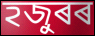
হজুৰৰ